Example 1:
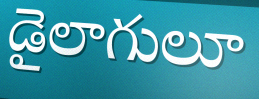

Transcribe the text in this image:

డైలాగులూ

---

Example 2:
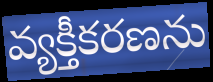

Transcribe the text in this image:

వ్యక్తీకరణను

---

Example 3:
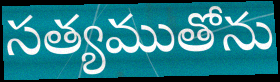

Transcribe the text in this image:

సత్యముతోను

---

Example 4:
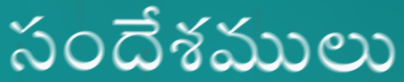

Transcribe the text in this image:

సందేశములు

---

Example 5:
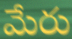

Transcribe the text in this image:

మేరు